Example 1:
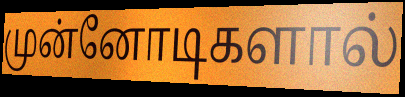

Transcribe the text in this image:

முன்னோடிகளால்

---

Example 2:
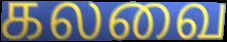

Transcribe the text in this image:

கலவை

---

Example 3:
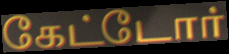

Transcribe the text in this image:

கேட்டோர்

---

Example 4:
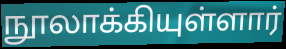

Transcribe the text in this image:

நூலாக்கியுள்ளார்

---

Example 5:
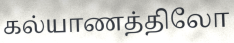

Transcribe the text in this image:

கல்யாணத்திலோ